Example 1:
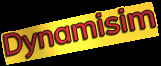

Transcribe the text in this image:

Dynamisim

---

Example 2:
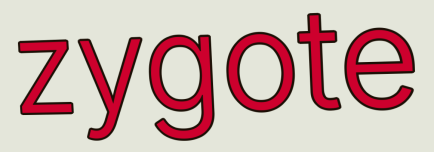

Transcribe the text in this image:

zygote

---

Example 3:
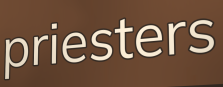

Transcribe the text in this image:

priesters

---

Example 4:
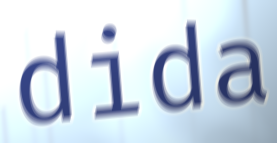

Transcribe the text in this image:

dida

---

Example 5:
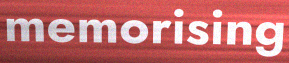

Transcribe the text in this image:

memorising